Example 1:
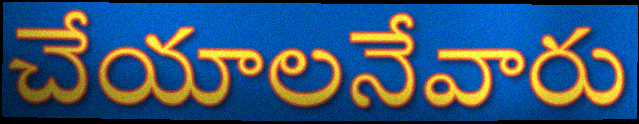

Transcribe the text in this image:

చేయాలనేవారు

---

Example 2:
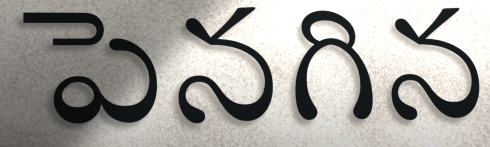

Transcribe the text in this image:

పెనగిన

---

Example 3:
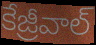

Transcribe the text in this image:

కేజ్రీవాల్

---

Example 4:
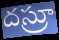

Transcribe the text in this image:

దస్రూ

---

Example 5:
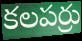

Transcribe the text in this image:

కలపర్రు